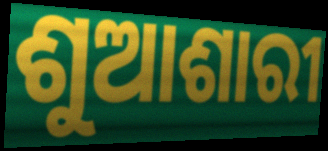
ଶୁଆଶାରୀ